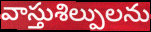
వాస్తుశిల్పులను